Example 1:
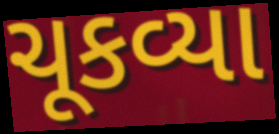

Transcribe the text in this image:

ચૂકવ્યા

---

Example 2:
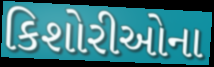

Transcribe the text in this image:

કિશોરીઓના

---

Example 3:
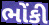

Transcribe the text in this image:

ભોંકી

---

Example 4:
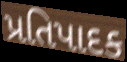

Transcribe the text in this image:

પ્રતિપાદક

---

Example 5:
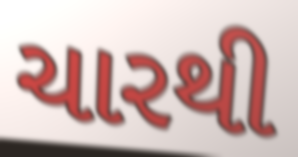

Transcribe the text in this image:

ચારથી